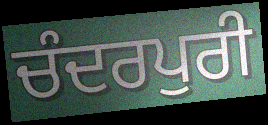
ਚੰਦਰਪੁਰੀ